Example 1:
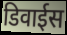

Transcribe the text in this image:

डिवाईस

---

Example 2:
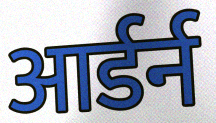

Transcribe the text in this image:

आर्डर्न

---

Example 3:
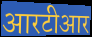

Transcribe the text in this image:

आरटीआर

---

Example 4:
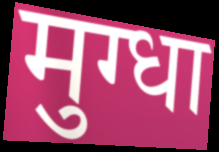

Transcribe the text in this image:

मुग्धा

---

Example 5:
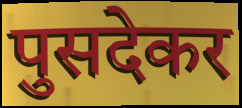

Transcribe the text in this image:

पुसदेकर